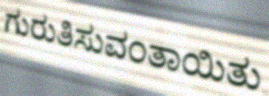
ಗುರುತಿಸುವಂತಾಯಿತು